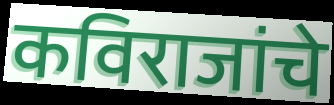
कविराजांचे